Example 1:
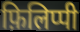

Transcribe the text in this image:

फ़िलिप्पी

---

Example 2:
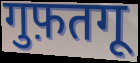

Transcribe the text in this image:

गुफ़तगू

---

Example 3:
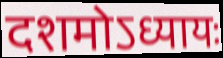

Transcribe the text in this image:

दशमोऽध्यायः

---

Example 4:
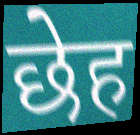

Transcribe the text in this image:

छेह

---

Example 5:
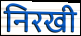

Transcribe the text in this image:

निरखी